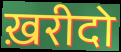
ख़रीदो